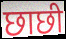
छाछी